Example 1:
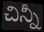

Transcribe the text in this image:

చిన్నీ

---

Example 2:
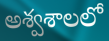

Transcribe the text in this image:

అశ్వశాలలో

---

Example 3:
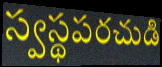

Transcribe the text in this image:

స్వస్థపరచుడి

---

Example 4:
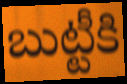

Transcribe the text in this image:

బుట్టీకి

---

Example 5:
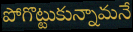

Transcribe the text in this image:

పోగొట్టుకున్నామనే